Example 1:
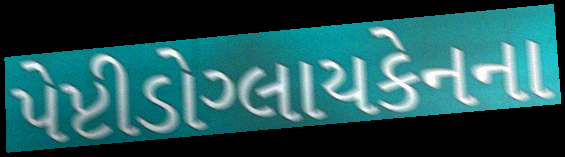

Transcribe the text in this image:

પેપ્ટીડોગ્લાયકેનના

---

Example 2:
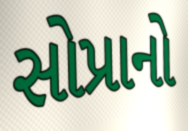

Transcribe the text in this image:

સોપ્રાનો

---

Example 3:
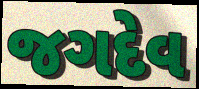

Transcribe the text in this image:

જગદેવ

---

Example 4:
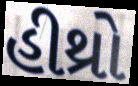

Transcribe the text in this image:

હીથ્રો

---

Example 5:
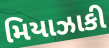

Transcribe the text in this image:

મિયાઝાકી